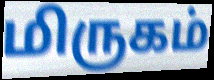
மிருகம்